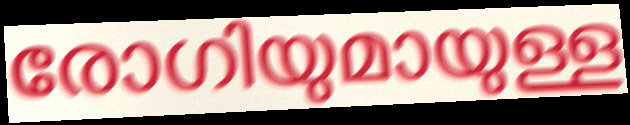
രോഗിയുമായുള്ള